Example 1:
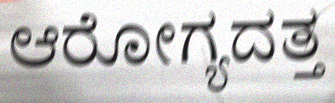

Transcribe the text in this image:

ಆರೋಗ್ಯದತ್ತ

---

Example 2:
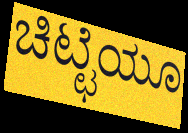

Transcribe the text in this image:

ಚಿಟ್ಟೆಯೂ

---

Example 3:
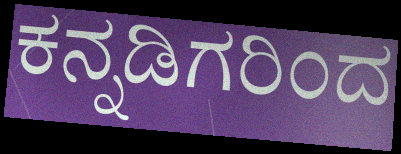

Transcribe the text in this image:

ಕನ್ನಡಿಗರಿಂದ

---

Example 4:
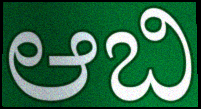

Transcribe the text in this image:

ಆಬಿ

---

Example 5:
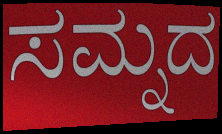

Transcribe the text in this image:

ಸಮ್ನದ